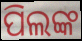
ପିଲଙ୍କ